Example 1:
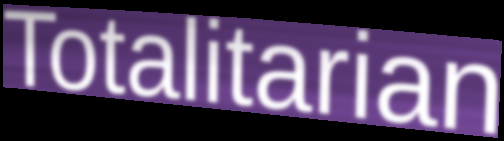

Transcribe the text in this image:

Totalitarian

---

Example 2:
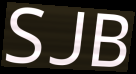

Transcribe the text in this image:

SJB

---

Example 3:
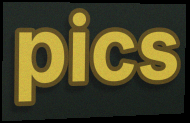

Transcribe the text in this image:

pics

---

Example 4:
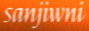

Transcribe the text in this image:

sanjiwni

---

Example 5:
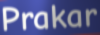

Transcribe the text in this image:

Prakar